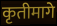
कृतीमागे